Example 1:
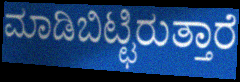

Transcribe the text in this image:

ಮಾಡಿಬಿಟ್ಟಿರುತ್ತಾರೆ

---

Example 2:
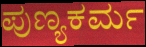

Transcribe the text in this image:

ಪುಣ್ಯಕರ್ಮ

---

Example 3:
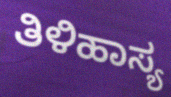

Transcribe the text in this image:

ತಿಳಿಹಾಸ್ಯ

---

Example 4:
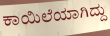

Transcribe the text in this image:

ಕಾಯಿಲೆಯಾಗಿದ್ದು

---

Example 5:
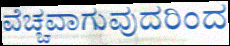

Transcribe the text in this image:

ವೆಚ್ಚವಾಗುವುದರಿಂದ